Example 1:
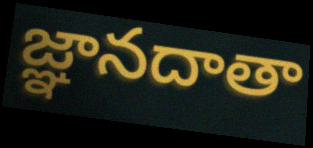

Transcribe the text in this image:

జ్ఞానదాతా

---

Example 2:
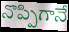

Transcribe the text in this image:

నొప్పిగానే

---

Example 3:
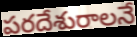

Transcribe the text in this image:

పరదేశురాలనే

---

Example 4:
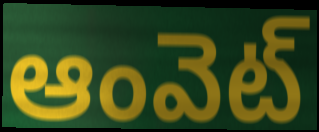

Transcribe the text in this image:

ఆంవెట్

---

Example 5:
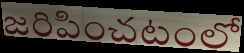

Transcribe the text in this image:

జరిపించటంలో